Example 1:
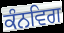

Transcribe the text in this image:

ਕੰਨਵਿਗ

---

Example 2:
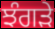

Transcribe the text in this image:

ਝੰਗੜੇ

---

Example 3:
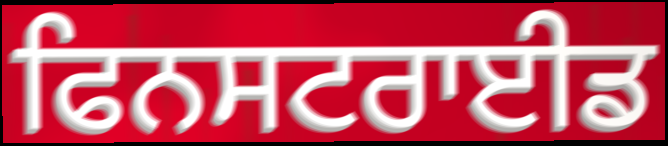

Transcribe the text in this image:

ਫਿਨਸਟਰਾਈਡ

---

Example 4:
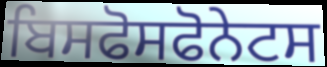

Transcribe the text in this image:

ਬਿਸਫੋਸਫੋਨੇਟਸ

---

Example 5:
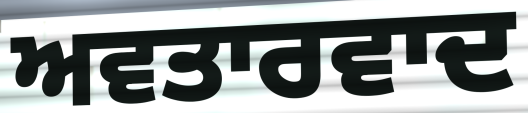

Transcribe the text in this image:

ਅਵਤਾਰਵਾਦ